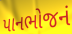
પાનભોજનં